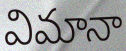
విమానా